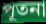
পূতনা